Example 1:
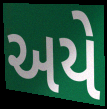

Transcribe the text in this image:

અયે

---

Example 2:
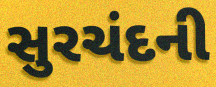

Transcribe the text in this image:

સુરચંદની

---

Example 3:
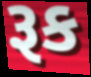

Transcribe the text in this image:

રૂક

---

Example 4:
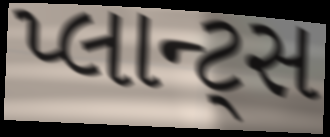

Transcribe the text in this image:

પ્લાન્ટ્સ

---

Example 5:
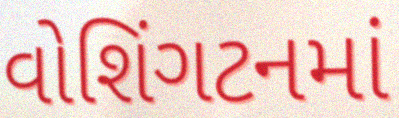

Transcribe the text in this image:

વોશિંગટનમાં